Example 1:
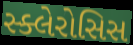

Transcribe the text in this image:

સ્ક્લેરોસિસ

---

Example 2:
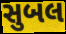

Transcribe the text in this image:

સુબલ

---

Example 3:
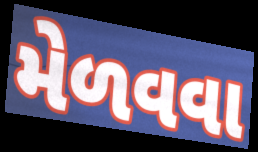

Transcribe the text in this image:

મેળવવા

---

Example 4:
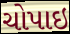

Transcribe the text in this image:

ચોપાઇ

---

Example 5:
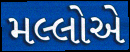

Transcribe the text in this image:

મલ્લોએ